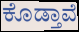
ಕೊಡ್ತಾವೆ